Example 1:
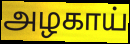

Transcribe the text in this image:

அழகாய்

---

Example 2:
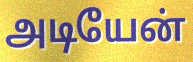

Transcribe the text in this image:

அடியேன்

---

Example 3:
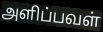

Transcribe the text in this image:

அளிப்பவள்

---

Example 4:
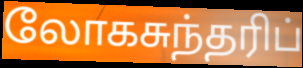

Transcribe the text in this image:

லோகசுந்தரிப்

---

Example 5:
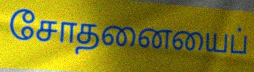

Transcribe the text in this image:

சோதனையைப்